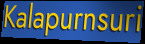
Kalapurnsuri